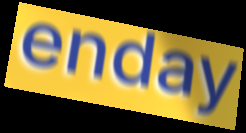
enday